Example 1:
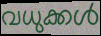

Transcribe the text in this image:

വധുക്കൾ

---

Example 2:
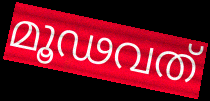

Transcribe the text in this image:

മൂഢവത്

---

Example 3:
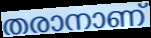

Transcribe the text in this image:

തരാനാണ്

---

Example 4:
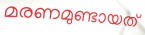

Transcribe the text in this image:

മരണമുണ്ടായത്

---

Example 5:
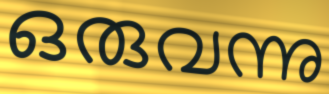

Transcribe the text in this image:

ഒരുവന്നു